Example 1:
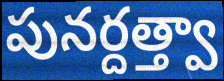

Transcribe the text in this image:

పునర్దత్త్వా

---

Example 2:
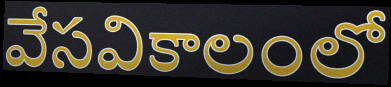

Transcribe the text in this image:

వేసవికాలంలో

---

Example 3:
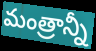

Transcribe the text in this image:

మంత్రాన్నీ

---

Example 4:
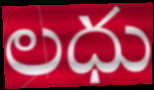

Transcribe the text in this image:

లధు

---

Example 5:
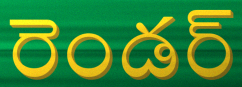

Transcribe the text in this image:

రెండర్